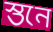
স্তনে